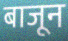
बाजून